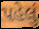
પહેલું